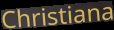
Christiana